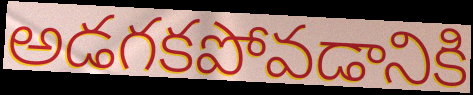
అడగకపోవడానికి